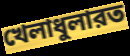
খেলাধুলারত